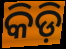
କିଡ଼ି